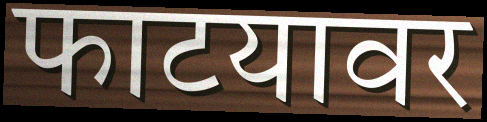
फाटयावर